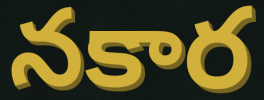
నకార